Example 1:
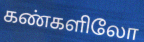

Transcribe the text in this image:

கண்களிலோ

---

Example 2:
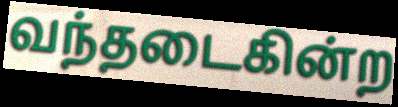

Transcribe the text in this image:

வந்தடைகின்ற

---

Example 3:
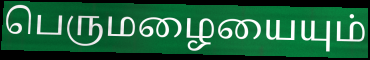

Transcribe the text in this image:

பெருமழையையும்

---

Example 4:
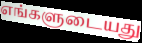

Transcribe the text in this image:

எங்களுடையது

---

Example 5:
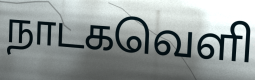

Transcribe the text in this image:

நாடகவெளி